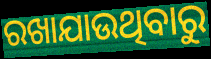
ରଖାଯାଉଥିବାରୁ